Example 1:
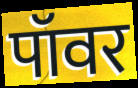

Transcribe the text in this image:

पॉवर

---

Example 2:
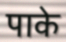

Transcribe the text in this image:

पाके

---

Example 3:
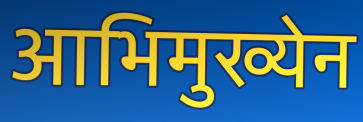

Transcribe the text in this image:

आभिमुख्येन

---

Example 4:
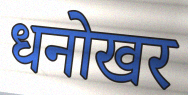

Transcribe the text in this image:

धनोखर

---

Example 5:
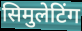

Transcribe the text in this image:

सिमुलेटिंग